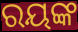
ରୟଙ୍କ